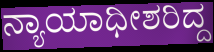
ನ್ಯಾಯಾಧೀಶರಿದ್ದ